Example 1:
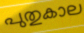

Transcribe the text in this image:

പുതുകാല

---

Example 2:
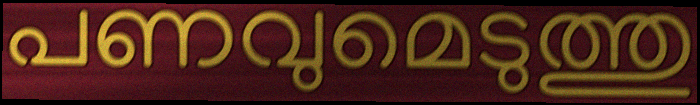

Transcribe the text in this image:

പണവുമെടുത്തു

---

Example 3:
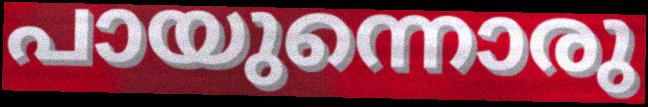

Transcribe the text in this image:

പായുന്നൊരു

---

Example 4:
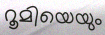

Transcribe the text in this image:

റൂമിയെയും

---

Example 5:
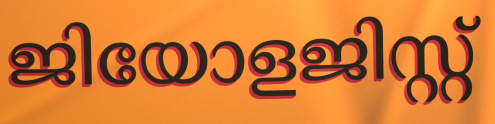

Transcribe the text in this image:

ജിയോളജിസ്റ്റ്